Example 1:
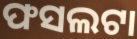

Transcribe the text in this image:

ଫସଲଟା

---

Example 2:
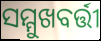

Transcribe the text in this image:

ସମ୍ମୁଖବର୍ତ୍ତୀ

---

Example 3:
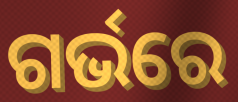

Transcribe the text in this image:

ଗର୍ଭରେ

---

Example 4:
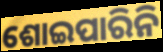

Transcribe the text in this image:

ଶୋଇପାରିନି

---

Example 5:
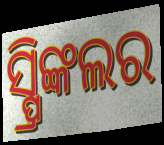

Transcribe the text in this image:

ସ୍ପ୍ରିଙ୍କଲର